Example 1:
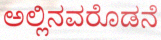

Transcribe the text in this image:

ಅಲ್ಲಿನವರೊಡನೆ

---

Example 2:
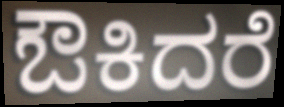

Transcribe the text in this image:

ಔಕಿದರೆ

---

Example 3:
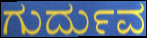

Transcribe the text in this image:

ಗುರ್ದುವ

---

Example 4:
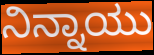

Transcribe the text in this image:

ನಿನ್ನಾಯು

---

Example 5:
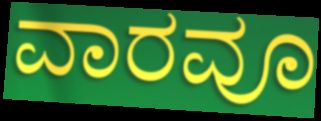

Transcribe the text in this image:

ವಾರವೂ